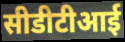
सीडीटीआई